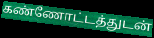
கண்ணோட்டத்துடன்